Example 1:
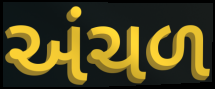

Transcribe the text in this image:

અંચળ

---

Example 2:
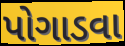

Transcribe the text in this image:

પોગાડવા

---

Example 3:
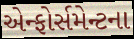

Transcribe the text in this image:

એન્ફોર્સમેન્ટના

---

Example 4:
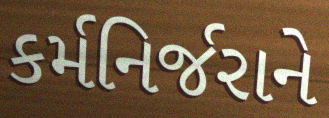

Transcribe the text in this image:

કર્મનિર્જરાને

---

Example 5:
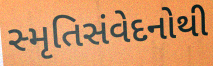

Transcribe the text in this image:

સ્મૃતિસંવેદનોથી